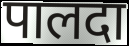
पालदा